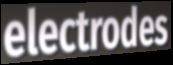
electrodes